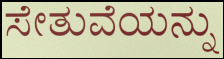
ಸೇತುವೆಯನ್ನು